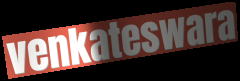
venkateswara